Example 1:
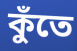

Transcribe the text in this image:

কুঁতে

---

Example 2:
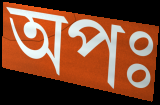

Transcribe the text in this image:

অপঃ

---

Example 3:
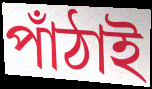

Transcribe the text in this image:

পাঁঠাই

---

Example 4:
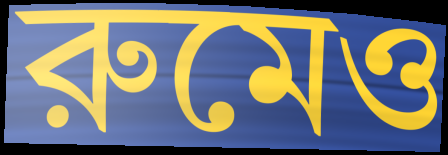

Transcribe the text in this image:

রুমেও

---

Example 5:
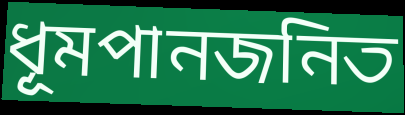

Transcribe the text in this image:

ধূমপানজনিত